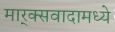
मार्क्सवादामध्ये